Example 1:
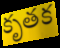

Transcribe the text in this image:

కృతక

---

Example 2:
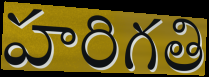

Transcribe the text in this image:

హరిగతి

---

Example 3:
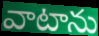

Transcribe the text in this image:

వాటాను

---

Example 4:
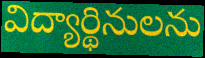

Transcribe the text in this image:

విద్యార్థినులను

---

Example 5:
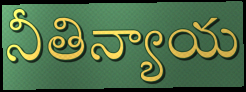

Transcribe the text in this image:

నీతిన్యాయ